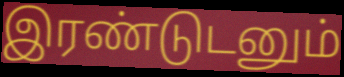
இரண்டுடனும்